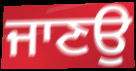
ਜਾਣਉ